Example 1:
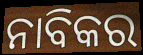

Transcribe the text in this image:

ନାବିକର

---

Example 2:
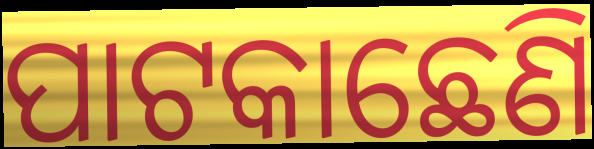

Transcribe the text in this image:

ପାଟକାଛେଣି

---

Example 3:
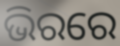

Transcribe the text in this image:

ଭିରରେ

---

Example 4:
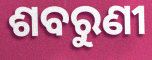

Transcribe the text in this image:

ଶବରୁଣୀ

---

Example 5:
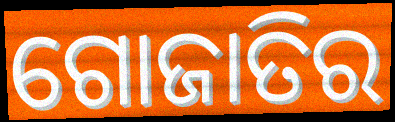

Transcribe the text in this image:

ଗୋଜାତିର